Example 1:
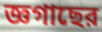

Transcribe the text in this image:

জ্ঞগাছের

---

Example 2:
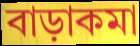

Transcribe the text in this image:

বাড়াকমা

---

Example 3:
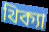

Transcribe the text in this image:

থিক্যা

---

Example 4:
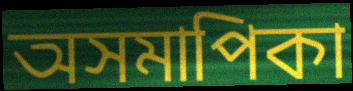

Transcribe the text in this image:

অসমাপিকা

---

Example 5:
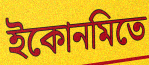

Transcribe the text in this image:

ইকোনমিতে